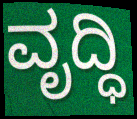
ವೃದ್ಧಿ